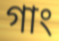
গাং